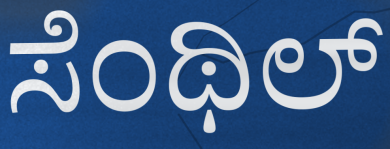
ಸೆಂಥಿಲ್